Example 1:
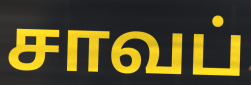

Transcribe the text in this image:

சாவப்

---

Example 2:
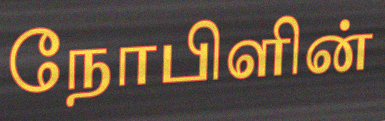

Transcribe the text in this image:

நோபிளின்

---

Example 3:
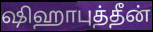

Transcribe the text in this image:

ஷிஹாபுத்தீன்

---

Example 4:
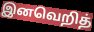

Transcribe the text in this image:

இனவெறித்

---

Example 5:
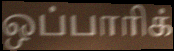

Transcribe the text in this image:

ஒப்பாரிக்